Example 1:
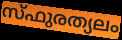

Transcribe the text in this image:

സ്ഫുരത്യലം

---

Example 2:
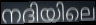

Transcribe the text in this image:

നദിയിലെ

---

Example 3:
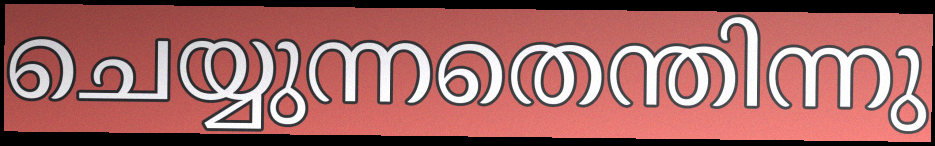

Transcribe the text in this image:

ചെയ്യുന്നതെന്തിന്നു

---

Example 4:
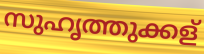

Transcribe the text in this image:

സുഹൃത്തുക്കള്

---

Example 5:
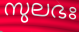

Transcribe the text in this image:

സുലഭഃ